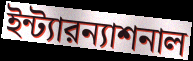
ইন্ট্যারন্যাশনাল